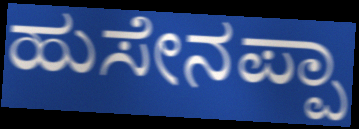
ಹುಸೇನಪ್ಪಾ